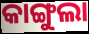
କାଙ୍ଗୁଲା